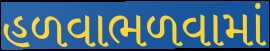
હળવાભળવામાં